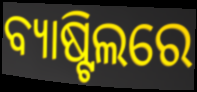
ବ୍ୟାଷ୍ଟିଲରେ